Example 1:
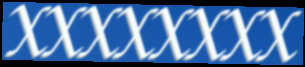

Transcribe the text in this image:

xxxxxxxx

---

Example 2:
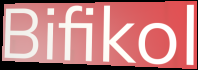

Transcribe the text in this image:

Bifikol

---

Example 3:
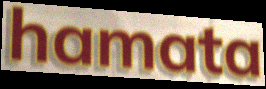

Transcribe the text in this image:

hamata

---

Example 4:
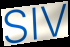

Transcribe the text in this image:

SIV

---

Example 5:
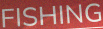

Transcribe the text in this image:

FISHING